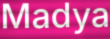
Madya